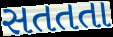
સતતતા